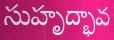
సుహృద్భావ